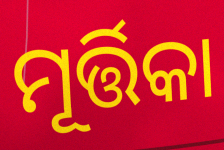
ମୂର୍ତ୍ତିକା